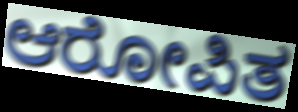
ಆರೋಪಿತ